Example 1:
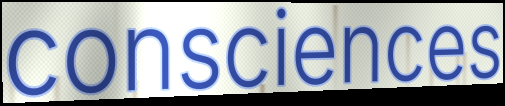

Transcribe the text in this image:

consciences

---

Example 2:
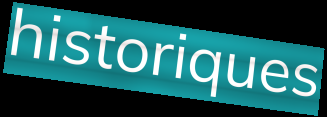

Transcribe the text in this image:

historiques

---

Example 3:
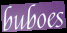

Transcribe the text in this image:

buboes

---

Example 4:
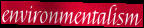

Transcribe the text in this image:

environmentalism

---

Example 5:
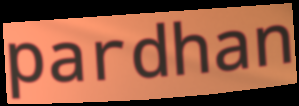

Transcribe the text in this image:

pardhan